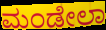
ಮಂಡೇಲಾ